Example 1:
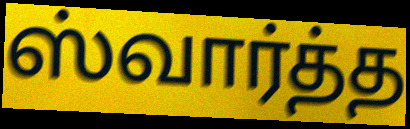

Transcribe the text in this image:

ஸ்வார்த்த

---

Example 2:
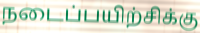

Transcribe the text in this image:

நடைப்பயிற்சிக்கு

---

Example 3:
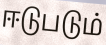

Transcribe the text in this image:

ஈடுபடும்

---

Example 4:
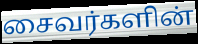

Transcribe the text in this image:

சைவர்களின்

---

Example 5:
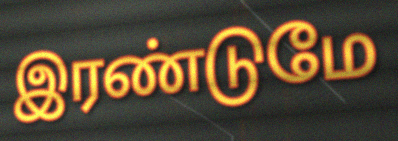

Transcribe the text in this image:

இரண்டுமே